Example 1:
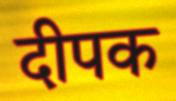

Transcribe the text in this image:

दीपक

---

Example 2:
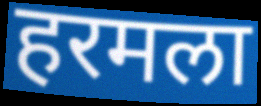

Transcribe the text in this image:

हरमला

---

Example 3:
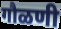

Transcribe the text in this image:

गौळणी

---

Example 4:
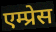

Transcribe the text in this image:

एम्प्रेस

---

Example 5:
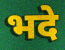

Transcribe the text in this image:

भदे